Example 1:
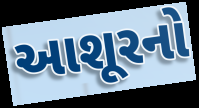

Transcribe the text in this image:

આશૂરનો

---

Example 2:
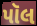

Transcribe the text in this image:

પૉલ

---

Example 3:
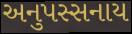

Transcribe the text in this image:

અનુપસ્સનાય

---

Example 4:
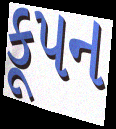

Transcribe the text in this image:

કૂપન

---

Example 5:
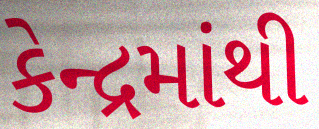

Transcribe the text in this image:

કેન્દ્રમાંથી